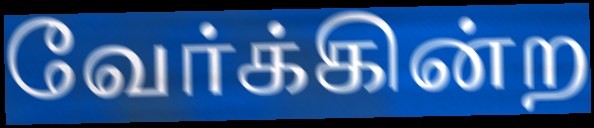
வேர்க்கின்ற